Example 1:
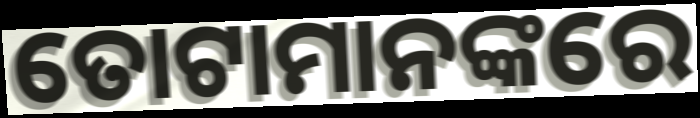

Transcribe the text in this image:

ତୋଟାମାନଙ୍କରେ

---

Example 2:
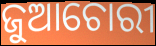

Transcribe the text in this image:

ଜୁଆଚୋରୀ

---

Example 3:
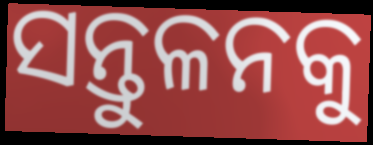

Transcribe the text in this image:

ସନ୍ତୁଳନକୁ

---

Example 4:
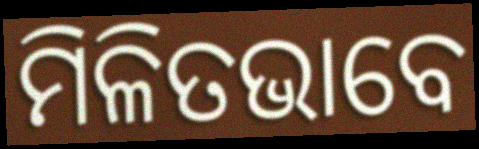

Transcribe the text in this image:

ମିଳିତଭାବେ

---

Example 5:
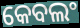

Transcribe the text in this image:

କେବଲଂ